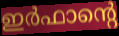
ഇർഫാന്റെ